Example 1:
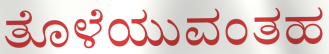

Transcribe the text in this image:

ತೊಳೆಯುವಂತಹ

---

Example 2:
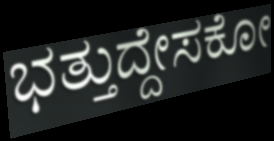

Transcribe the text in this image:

ಭತ್ತುದ್ದೇಸಕೋ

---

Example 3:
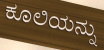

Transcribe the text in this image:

ಕೂಲಿಯನ್ನು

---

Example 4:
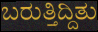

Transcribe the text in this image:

ಬರುತ್ತಿದ್ದಿತು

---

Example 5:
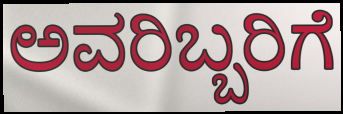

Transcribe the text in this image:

ಅವರಿಬ್ಬರಿಗೆ